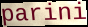
parini